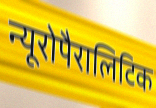
न्यूरोपैरालिटिक